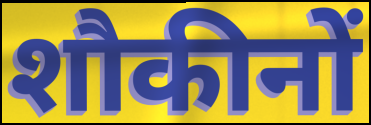
शौकीनों